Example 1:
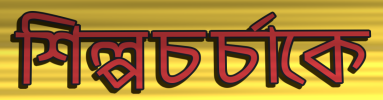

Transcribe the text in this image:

শিল্পচর্চাকে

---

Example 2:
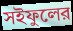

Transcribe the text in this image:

সইফুলের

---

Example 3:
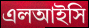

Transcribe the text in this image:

এলআইসি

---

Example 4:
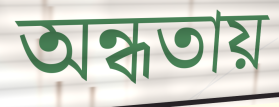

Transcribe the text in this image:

অন্ধতায়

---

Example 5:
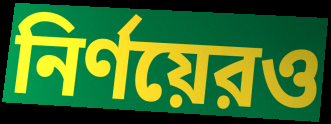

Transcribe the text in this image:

নির্ণয়েরও